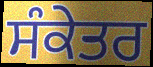
ਸੰਕੇਤਰ